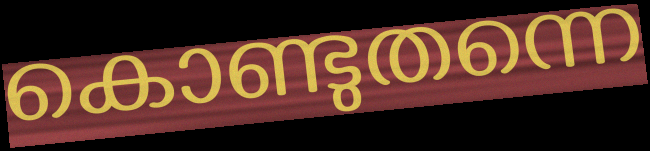
കൊണ്ടുതന്നെ